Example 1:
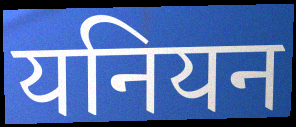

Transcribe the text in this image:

यनियन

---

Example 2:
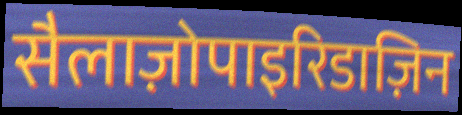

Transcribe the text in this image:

सैलाज़ोपाइरिडाज़िन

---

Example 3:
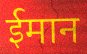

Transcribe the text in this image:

ईमान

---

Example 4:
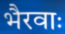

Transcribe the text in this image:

भैरवाः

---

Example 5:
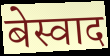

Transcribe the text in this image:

बेस्वाद